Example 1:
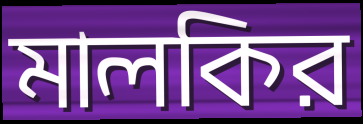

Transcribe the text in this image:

মালকির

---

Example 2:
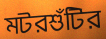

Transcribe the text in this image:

মটরশুঁটির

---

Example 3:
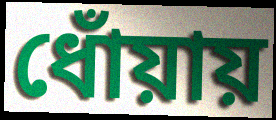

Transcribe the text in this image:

ধোঁয়ায়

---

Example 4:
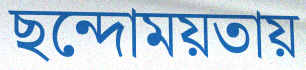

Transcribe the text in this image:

ছন্দোময়তায়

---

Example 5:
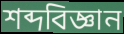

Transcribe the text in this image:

শব্দবিজ্ঞান